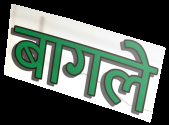
बागले